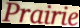
Prairie